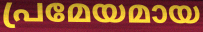
പ്രമേയമായ